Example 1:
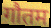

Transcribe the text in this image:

गौतम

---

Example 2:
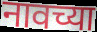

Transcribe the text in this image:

नावच्या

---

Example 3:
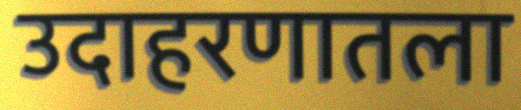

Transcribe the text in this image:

उदाहरणातला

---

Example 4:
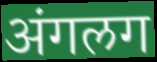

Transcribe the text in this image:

अंगलग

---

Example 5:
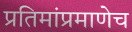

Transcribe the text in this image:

प्रतिमांप्रमाणेच